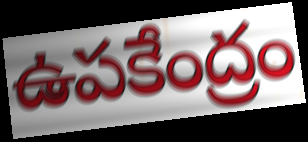
ఉపకేంద్రం